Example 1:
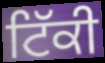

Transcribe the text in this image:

ਟਿੱਕੀ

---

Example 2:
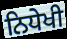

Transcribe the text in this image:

ਨਿਧੇਖੀ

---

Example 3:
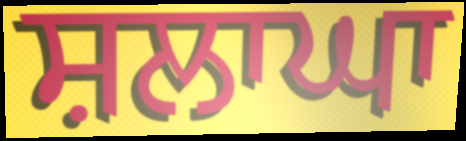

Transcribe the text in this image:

ਸ਼ਲਾਘਾ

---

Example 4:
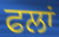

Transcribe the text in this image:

ਫਲਾਂ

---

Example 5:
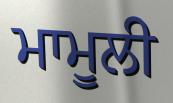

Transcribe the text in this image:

ਮਾਮੂਲੀ